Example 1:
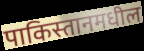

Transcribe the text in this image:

पाकिस्तानमधील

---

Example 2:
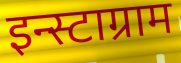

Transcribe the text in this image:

इन्स्टाग्राम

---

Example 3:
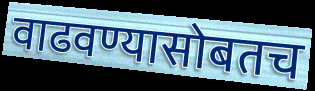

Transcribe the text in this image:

वाढवण्यासोबतच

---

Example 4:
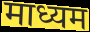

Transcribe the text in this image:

माध्यम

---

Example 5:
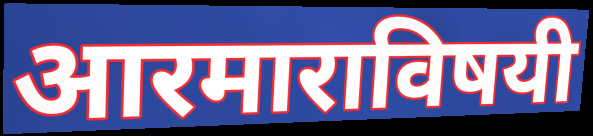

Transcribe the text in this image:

आरमाराविषयी